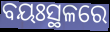
ବୟଃସ୍ଥଳରେ